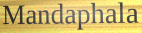
Mandaphala